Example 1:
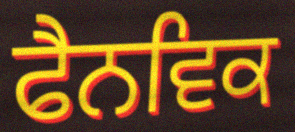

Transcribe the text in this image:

ਫੈਨਵਿਕ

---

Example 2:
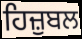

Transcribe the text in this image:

ਹਿਜ਼ੁਬਲ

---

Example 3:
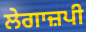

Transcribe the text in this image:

ਲੇਗਾਜ਼ਪੀ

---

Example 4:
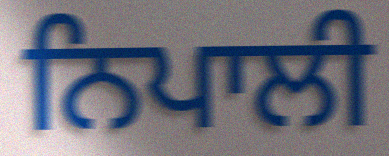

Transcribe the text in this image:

ਨਿਪਾਲੀ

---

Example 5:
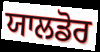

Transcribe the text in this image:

ਯਾਲਡੋਰ